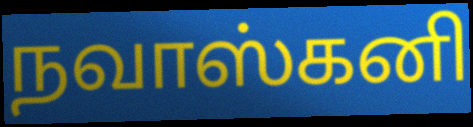
நவாஸ்கனி